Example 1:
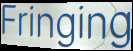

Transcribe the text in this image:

Fringing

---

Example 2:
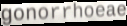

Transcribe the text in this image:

gonorrhoeae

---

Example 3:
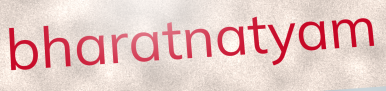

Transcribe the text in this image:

bharatnatyam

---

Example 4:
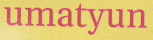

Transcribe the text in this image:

umatyun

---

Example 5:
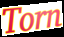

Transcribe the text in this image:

Torn